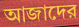
আজাদের